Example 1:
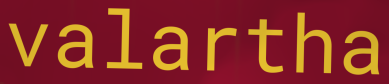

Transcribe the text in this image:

valartha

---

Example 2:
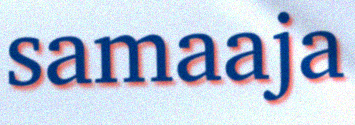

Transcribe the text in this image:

samaaja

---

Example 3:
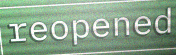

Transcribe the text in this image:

reopened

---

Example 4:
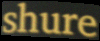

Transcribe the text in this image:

shure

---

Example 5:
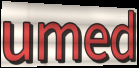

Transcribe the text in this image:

umed